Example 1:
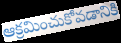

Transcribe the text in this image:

ఆక్రమించుకోవడానికి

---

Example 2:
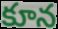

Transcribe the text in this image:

కూన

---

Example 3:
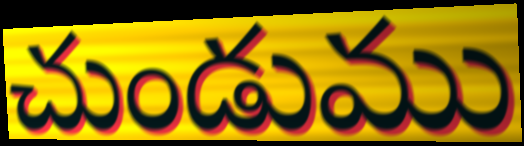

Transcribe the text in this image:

చుండుము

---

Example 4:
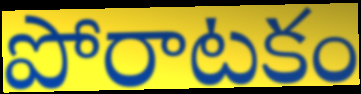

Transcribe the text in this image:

పోరాటకం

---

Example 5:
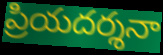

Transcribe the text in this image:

ప్రియదర్శనా